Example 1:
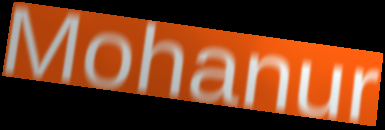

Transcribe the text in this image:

Mohanur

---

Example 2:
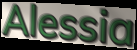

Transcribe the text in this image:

Alessia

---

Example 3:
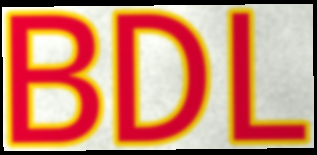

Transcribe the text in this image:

BDL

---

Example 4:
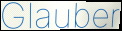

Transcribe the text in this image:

Glauber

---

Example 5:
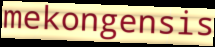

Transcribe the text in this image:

mekongensis